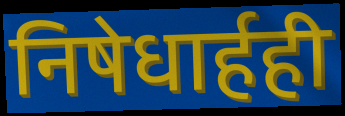
निषेधार्हही